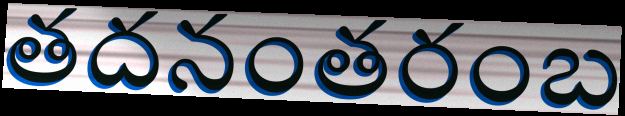
తదనంతరంబ